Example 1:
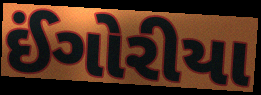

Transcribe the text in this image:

ઈંગોરીયા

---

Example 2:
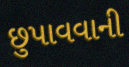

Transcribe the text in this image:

છુપાવવાની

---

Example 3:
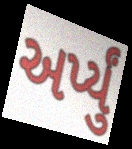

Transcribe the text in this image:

અર્પ્યું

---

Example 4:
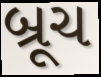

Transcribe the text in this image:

બ્રૂચ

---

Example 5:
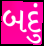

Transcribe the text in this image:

બદું